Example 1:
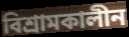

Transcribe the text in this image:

বিশ্রামকালীন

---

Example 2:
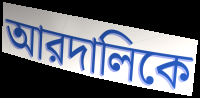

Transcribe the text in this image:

আরদালিকে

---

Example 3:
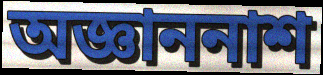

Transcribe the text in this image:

অজ্ঞাননাশ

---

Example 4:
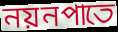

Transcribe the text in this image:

নয়নপাতে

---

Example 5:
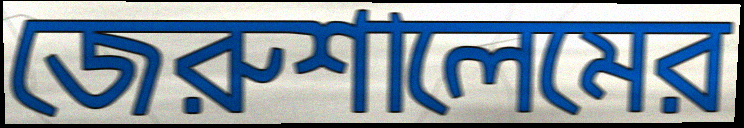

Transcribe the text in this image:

জেরুশালেমের